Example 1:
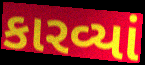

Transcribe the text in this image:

કારવ્યાં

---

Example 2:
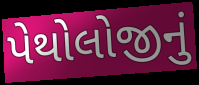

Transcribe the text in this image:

પેથોલોજીનું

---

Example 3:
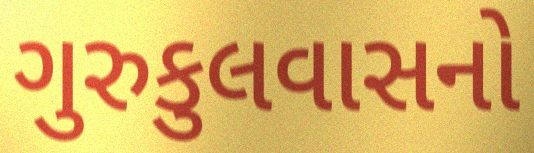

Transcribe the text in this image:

ગુરુકુલવાસનો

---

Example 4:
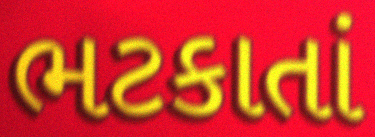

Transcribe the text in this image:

ભટકાતાં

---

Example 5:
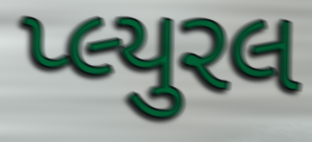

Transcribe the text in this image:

પ્લ્યુરલ